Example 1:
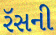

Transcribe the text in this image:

રૅસની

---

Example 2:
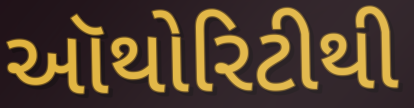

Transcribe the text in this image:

ઑથોરિટીથી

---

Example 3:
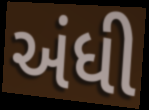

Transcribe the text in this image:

અંધી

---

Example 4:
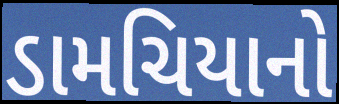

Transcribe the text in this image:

ડામચિયાનો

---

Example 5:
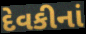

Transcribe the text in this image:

દેવકીનાં